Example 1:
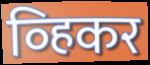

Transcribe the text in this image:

व्हिकर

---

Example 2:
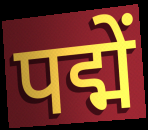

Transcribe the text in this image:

पद्में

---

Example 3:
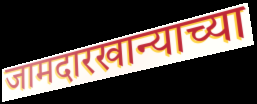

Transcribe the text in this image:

जामदारखान्याच्या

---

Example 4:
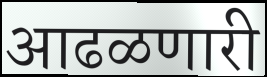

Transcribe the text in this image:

आढळणारी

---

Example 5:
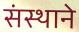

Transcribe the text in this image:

संस्थाने